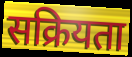
सक्रियता